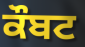
ਕੌਬਟ